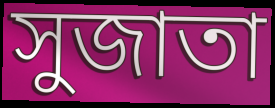
সুজাতা